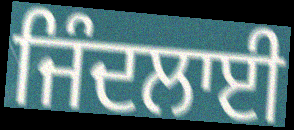
ਜਿੰਦਲਾਈ